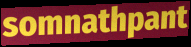
somnathpant